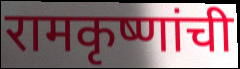
रामकृष्णांची